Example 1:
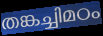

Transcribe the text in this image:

തങ്കച്ചിമഠം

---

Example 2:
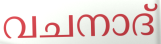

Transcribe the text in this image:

വചനാദ്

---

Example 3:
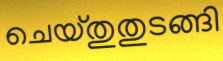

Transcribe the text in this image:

ചെയ്തുതുടങ്ങി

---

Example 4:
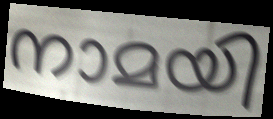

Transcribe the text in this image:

നാമയി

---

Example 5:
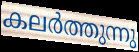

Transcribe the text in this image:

കലർത്തുന്നു